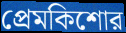
প্রেমকিশোর